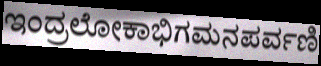
ಇಂದ್ರಲೋಕಾಭಿಗಮನಪರ್ವಣಿ